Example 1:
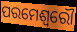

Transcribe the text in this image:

ପରମେଶ୍ଵରୌ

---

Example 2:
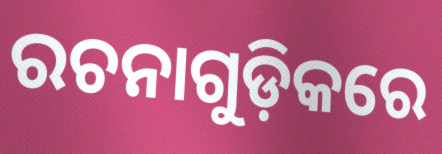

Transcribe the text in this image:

ରଚନାଗୁଡ଼ିକରେ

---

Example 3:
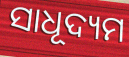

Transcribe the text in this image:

ସାଧୂଦ୍ୟମ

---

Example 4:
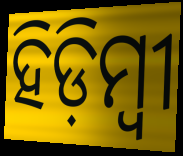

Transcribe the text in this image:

ହିଡ଼ିମ୍ବୀ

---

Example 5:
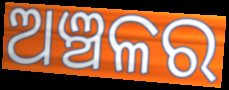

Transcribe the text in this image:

ଅଞ୍ଚଳର